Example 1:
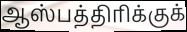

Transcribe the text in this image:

ஆஸ்பத்திரிக்குக்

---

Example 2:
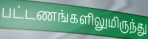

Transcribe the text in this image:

பட்டணங்களிலுமிருந்து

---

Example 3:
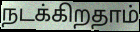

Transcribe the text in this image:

நடக்கிறதாம்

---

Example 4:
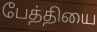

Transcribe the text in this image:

பேத்தியை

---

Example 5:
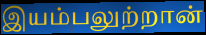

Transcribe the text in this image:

இயம்பலுற்றான்